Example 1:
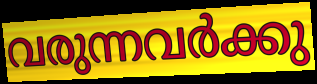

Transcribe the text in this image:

വരുന്നവർക്കു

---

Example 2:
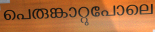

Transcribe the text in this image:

പെരുങ്കാറ്റുപോലെ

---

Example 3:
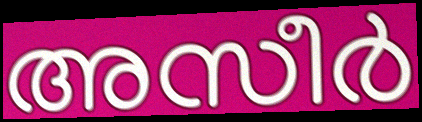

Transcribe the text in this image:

അസീർ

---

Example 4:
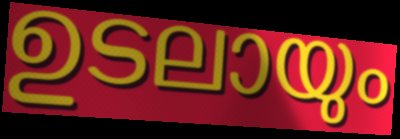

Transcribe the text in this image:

ഉടലായും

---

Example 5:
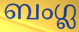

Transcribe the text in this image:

ബംഗ്ല